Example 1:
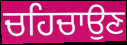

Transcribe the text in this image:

ਚਹਿਚਾਉਣ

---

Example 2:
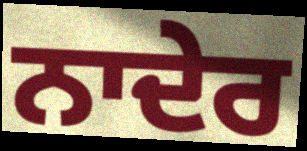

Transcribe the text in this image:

ਨਾਦੇਰ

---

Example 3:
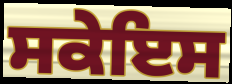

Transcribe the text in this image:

ਸਕੇਇਸ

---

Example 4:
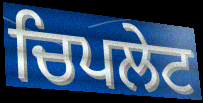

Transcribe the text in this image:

ਚਿਪਲੇਟ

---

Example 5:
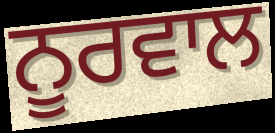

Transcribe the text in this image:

ਨੂਰਵਾਲ